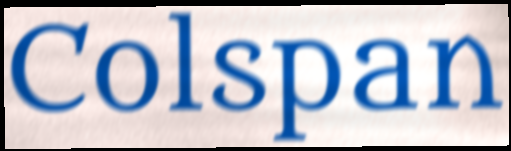
Colspan